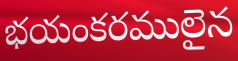
భయంకరములైన